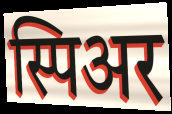
स्पिअर